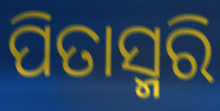
ପିତାସ୍ମରି